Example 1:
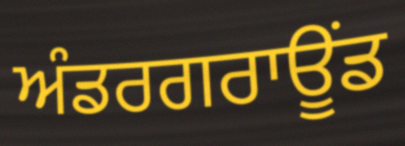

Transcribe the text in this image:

ਅੰਡਰਗਰਾਊਂਡ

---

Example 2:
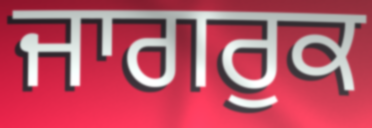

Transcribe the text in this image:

ਜਾਗਰੁਕ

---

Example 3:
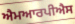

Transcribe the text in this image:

ਐਮਆਰਪੀਐਸ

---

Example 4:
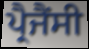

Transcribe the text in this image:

ਪ੍ਰੈਜੈਂਸੀ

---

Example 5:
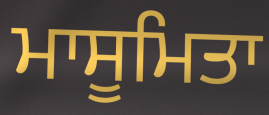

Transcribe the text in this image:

ਮਾਸੂਮਿਤਾ